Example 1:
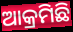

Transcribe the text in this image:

ଆକ୍ରମିଛି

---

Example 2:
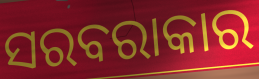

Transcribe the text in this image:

ସରବରାକାର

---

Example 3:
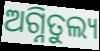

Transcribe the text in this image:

ଅଗ୍ନିତୁଲ୍ୟ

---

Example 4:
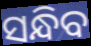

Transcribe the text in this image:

ସନ୍ଧିବ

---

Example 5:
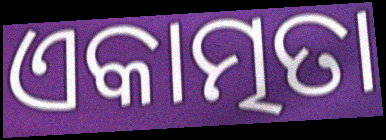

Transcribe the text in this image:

ଏକାତ୍ମତା